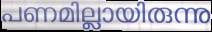
പണമില്ലായിരുന്നു